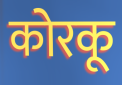
कोरकू